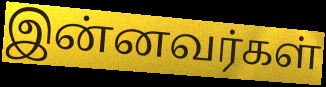
இன்னவர்கள்